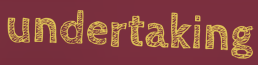
undertaking